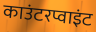
काउंटरप्वाइंट